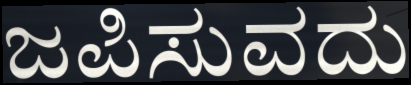
ಜಪಿಸುವದು